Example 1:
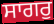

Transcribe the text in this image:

ਸਾਗਰੁ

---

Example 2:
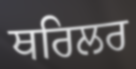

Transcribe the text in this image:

ਥਰਿਲਰ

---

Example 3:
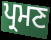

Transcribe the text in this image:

ਪ੍ਰਮਣ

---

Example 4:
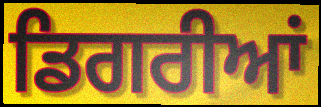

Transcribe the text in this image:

ਡਿਗਰੀਆਂ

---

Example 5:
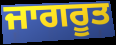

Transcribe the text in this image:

ਜਾਗਰੂਤ